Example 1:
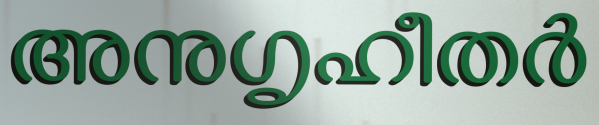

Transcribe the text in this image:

അനുഗൃഹീതർ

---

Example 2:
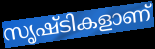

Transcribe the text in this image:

സൃഷ്ടികളാണ്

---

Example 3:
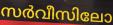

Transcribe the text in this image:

സർവീസിലോ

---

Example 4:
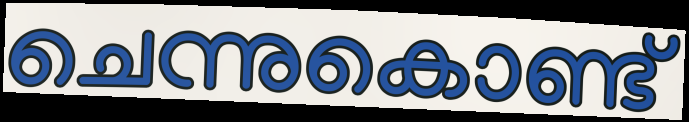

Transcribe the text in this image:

ചെന്നുകൊണ്ട്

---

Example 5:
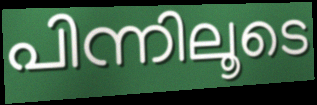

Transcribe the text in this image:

പിന്നിലൂടെ